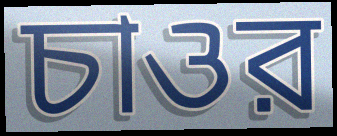
চাওর